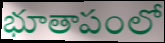
భూతాపంలో